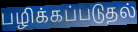
பழிக்கப்படுதல்